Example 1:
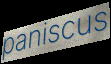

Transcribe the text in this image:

paniscus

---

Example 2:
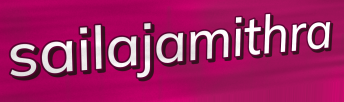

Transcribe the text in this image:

sailajamithra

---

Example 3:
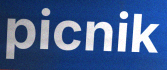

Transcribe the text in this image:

picnik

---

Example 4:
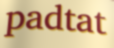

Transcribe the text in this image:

padtat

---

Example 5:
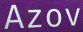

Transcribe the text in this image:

Azov